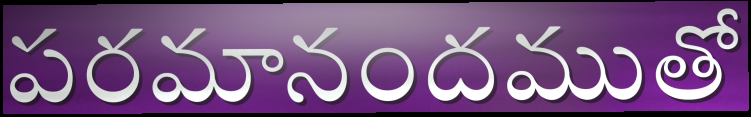
పరమానందముతో